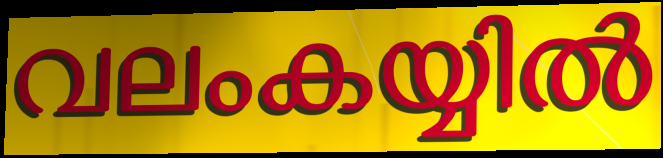
വലംകയ്യിൽ